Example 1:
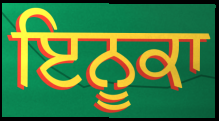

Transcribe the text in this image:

ਇਨੂਕਾ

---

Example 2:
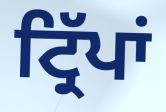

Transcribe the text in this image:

ਟ੍ਰਿੱਪਾਂ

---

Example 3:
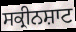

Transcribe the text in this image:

ਸਕ੍ਰੀਨਸ਼ਾਟ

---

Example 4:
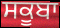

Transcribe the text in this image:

ਸਕੂਬਾ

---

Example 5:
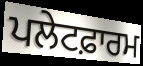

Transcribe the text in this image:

ਪਲੇਟਫ਼ਾਰਮ